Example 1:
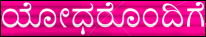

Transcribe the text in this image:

ಯೋಧರೊಂದಿಗೆ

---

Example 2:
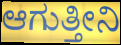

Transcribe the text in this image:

ಆಗುತ್ತೀನಿ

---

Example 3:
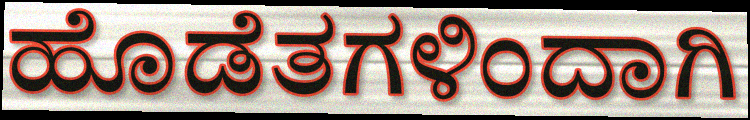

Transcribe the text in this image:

ಹೊಡೆತಗಳಿಂದಾಗಿ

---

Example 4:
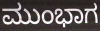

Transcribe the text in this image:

ಮುಂಭಾಗ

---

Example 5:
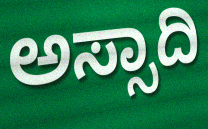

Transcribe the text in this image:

ಅಸ್ಸಾದಿ